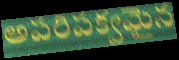
అపరిపక్వమైన